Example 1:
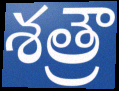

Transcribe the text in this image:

శత్రౌ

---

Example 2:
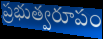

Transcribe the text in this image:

ప్రభుత్వరూపం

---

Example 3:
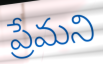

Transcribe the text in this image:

ప్రేమని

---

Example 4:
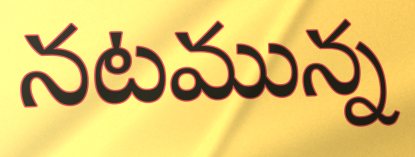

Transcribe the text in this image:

నటమున్న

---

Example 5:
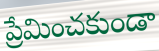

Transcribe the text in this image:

ప్రేమించకుండా